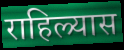
राहिल्यास